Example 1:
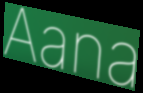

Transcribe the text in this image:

Aana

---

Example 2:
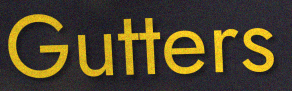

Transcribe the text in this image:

Gutters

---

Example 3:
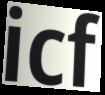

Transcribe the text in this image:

icf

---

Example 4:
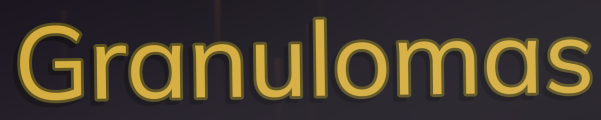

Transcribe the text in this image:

Granulomas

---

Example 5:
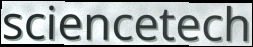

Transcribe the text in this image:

sciencetech